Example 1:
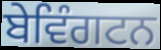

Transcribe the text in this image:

ਬੇਵਿੰਗਟਨ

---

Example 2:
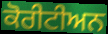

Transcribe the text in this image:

ਕੋਰੀਟੀਅਨ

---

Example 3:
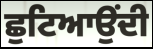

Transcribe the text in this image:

ਛੁਟਿਆਉਂਦੀ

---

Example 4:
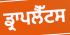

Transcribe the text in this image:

ਡ੍ਰਾਪਲੈੱਟਸ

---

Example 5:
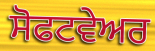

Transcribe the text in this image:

ਸੋਫਟਵੇਅਰ